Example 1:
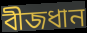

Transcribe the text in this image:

বীজধান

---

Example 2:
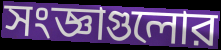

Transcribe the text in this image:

সংজ্ঞাগুলোর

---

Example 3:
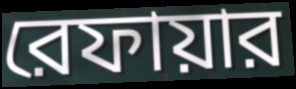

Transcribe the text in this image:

রেফায়ার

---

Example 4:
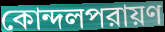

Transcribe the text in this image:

কোন্দলপরায়ণ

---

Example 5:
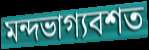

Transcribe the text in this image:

মন্দভাগ্যবশত